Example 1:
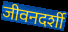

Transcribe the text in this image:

जीवनदर्शी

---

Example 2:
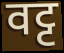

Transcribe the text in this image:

वट्ट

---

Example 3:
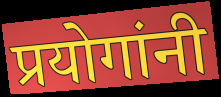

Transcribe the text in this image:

प्रयोगांनी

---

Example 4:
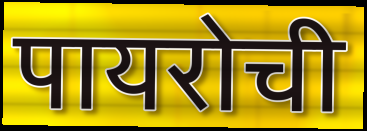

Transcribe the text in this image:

पायरोची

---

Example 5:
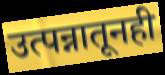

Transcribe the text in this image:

उत्पन्नातूनही